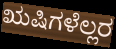
ಋಷಿಗಳೆಲ್ಲರ